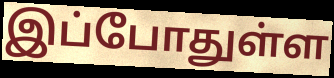
இப்போதுள்ள